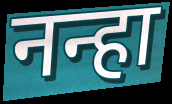
नन्हा